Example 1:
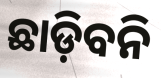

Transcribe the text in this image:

ଛାଡ଼ିବନି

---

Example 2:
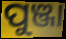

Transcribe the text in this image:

ପୁଞ୍ଜା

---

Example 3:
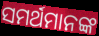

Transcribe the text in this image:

ସମର୍ଥମାନଙ୍କ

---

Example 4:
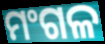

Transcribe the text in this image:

ମଂଗଳ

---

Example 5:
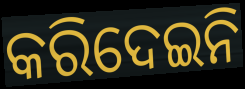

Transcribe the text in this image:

କରିଦେଇନି